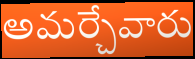
అమర్చేవారు